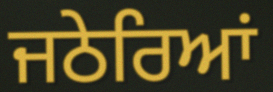
ਜਠੇਰਿਆਂ